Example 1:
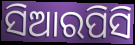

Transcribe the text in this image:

ସିଆରପିସି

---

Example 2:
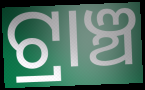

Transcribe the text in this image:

ଟ୍ରାଞ୍ଚ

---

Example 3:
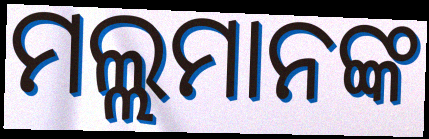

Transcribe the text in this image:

ମଲ୍ଲମାନଙ୍କ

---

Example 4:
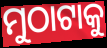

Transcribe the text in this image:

ମୁଠାଟାକୁ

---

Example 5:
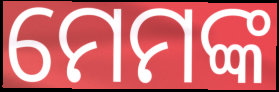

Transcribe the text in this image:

ମେମଙ୍କ